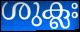
ശുക്ലഃ